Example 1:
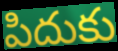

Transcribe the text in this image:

పిదుకు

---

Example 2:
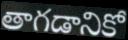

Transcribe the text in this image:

తాగడానికో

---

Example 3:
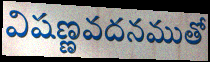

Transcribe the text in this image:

విషణ్ణవదనముతో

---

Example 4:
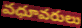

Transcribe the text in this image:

వధూవరులు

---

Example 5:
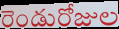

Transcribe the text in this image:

రెండురోజుల